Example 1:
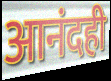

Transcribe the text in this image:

आनंदही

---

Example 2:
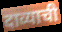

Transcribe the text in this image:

दाव्याची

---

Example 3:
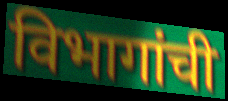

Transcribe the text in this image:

विभागांची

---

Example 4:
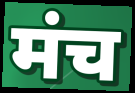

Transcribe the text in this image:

मंच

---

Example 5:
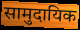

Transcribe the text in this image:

सामुदायिक